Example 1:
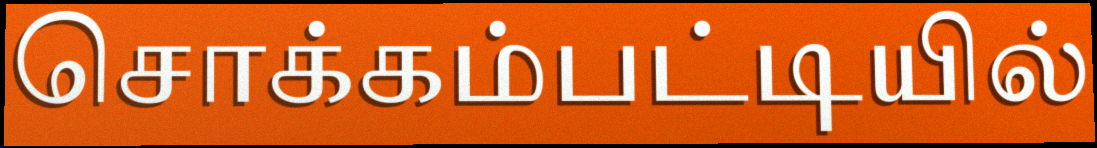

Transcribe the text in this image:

சொக்கம்பட்டியில்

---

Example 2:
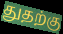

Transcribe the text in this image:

துதற்கு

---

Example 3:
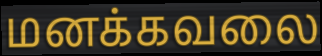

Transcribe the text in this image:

மனக்கவலை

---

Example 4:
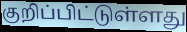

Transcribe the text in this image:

குறிப்பிட்டுள்ளது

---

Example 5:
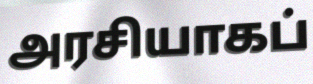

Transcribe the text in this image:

அரசியாகப்